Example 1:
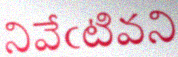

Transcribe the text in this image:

నివేఁటివని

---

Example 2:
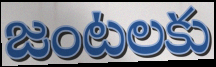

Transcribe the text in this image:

జంటలకు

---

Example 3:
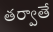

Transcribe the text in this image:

తర్వాతే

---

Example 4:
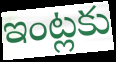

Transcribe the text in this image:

ఇంట్లకు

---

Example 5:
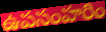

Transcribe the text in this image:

ఉపసంహరిం